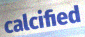
calcified